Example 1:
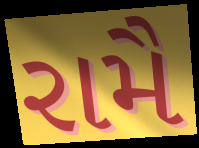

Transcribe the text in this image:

રામૈ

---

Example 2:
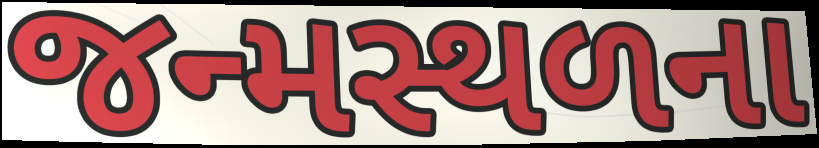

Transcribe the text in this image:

જન્મસ્થળના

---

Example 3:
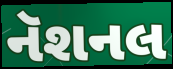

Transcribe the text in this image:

નૅશનલ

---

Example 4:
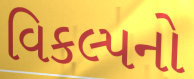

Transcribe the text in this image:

વિકલ્પનો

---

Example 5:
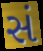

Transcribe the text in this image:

સં